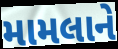
મામલાને